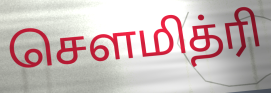
சௌமித்ரி